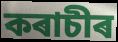
কৰাচীৰ